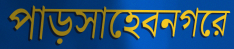
পাড়সাহেবনগরে